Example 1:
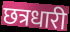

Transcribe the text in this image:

छत्रधारी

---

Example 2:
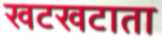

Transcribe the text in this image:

खटखटाता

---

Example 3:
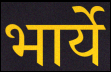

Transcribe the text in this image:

भार्ये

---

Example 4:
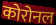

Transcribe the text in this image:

कोरोनल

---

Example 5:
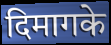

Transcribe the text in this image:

दिमागके